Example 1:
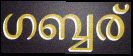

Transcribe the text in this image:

ഗബ്ബര്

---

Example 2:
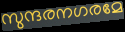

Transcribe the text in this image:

സുന്ദരനഗരമേ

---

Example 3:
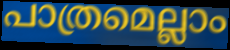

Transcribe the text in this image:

പാത്രമെല്ലാം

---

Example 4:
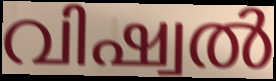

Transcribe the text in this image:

വിഷ്വൽ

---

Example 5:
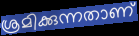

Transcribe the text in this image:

ശ്രമിക്കുന്നതാണ്